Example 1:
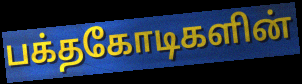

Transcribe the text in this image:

பக்தகோடிகளின்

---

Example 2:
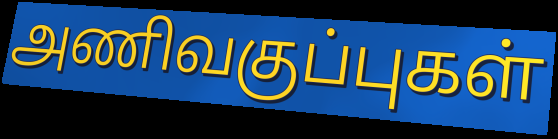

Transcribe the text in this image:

அணிவகுப்புகள்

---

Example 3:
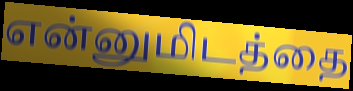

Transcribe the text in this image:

என்னுமிடத்தை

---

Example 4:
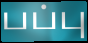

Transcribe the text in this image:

பப்பு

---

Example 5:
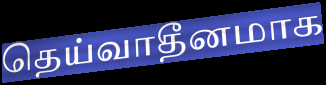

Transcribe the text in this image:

தெய்வாதீனமாக